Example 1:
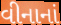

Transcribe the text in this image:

વીનાનાં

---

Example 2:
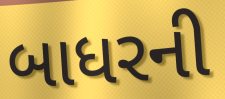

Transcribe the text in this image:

બાધરની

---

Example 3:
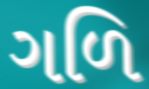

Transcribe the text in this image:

ગળિ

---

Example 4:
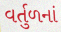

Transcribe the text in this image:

વર્તુળનાં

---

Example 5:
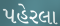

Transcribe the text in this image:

પહેરલા